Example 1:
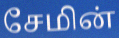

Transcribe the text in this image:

சேமின்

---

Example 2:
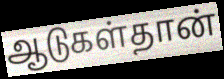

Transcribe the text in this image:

ஆடுகள்தான்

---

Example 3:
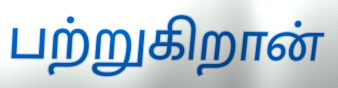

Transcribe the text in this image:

பற்றுகிறான்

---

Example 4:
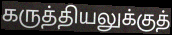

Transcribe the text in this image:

கருத்தியலுக்குத்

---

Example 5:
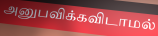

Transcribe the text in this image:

அனுபவிக்கவிடாமல்